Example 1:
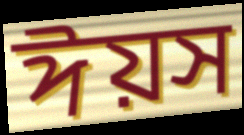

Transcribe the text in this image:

ঈয়স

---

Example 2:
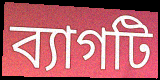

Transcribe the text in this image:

ব্যাগটি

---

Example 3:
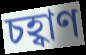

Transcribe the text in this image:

চহ্বাণ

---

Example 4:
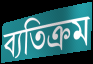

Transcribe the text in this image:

ব্যতিক্রম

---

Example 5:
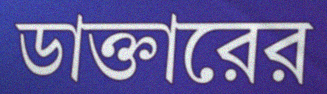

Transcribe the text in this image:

ডাক্তারের